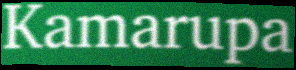
Kamarupa